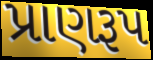
પ્રાણરૂપ